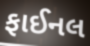
ફાઈનલ